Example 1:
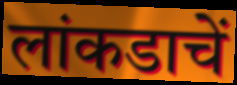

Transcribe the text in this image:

लांकडाचें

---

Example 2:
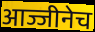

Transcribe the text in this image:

आज्जीनेच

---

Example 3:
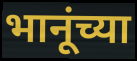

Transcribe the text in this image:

भानूंच्या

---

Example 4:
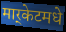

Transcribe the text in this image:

मार्केटमधे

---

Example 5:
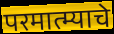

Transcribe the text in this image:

परमात्म्याचे